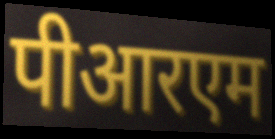
पीआरएम